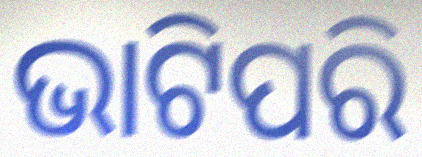
ଭାଟିପରି